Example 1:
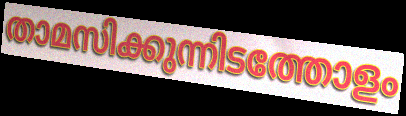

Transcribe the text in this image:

താമസിക്കുന്നിടത്തോളം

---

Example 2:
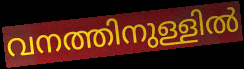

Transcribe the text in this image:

വനത്തിനുള്ളിൽ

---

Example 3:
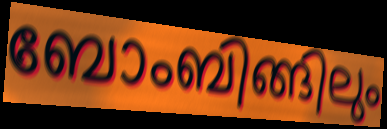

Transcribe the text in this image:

ബോംബിങ്ങിലും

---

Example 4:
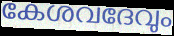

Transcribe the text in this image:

കേശവദേവും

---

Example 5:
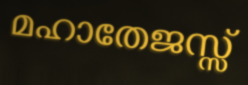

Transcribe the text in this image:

മഹാതേജസ്സ്